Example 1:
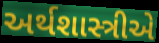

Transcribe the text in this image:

અર્થશાસ્ત્રીએ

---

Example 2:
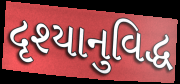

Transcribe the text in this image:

દૃશ્યાનુવિદ્ધ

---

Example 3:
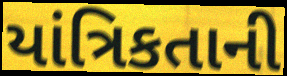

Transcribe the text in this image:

યાંત્રિકતાની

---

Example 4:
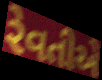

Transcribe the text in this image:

રેવતીએ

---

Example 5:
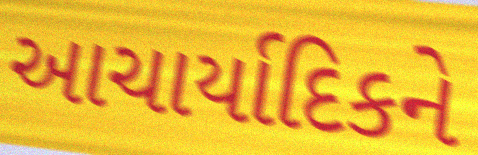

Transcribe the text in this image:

આચાર્યાદિકને